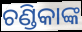
ଚଣ୍ଡିକାଙ୍କ